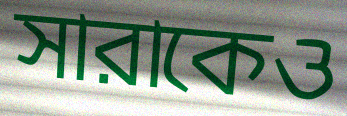
সারাকেও